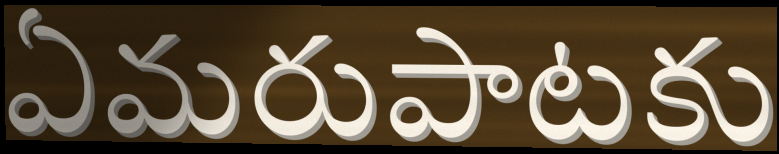
ఏమరుపాటకు